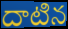
దాటిన